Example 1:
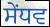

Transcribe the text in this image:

ਸੇਂਧਵ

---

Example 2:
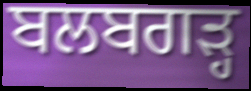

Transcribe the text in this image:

ਬਲਬਗੜ੍ਹ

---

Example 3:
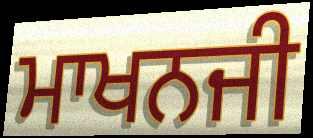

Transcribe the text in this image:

ਮਾਖਨਜੀ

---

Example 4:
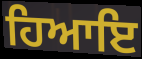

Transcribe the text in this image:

ਹਿਆਇ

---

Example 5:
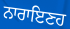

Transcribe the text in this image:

ਨਾਰਾਇਣਹ